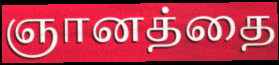
ஞானத்தை